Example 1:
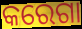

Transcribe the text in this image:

କରେଗା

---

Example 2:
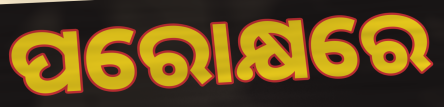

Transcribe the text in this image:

ପରୋକ୍ଷରେ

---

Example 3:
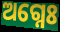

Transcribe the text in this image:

ଅଗ୍ନେଃ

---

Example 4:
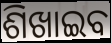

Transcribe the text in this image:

ଶିଖାଇବ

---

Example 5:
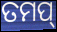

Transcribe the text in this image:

ତମପ୍